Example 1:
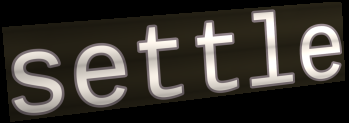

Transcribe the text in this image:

settle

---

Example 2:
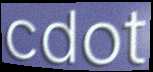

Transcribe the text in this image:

cdot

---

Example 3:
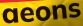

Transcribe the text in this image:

aeons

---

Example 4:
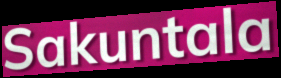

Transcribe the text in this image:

Sakuntala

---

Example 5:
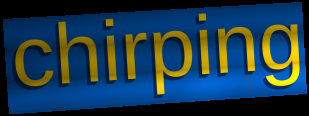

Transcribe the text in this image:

chirping